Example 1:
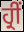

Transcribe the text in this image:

ਹ੍ਰੀਂ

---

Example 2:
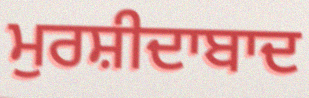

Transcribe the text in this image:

ਮੁਰਸ਼ੀਦਾਬਾਦ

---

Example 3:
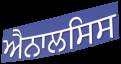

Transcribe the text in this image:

ਐਨਾਲਸਿਸ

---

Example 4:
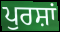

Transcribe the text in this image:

ਪੁਰਸ਼ਾਂ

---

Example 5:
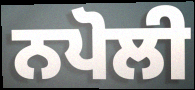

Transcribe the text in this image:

ਨਪੋਲੀ